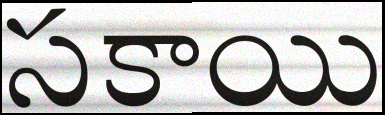
సకాయి